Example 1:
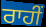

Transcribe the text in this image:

ਰਾਹੀਂ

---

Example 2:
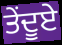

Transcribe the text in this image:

ਤੇਂਦੂਏ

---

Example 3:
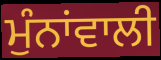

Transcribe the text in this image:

ਮੁੰਨਾਂਵਾਲੀ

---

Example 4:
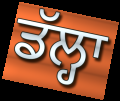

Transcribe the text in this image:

ਡੱਲ੍ਹਾ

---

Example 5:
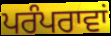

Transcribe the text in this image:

ਪਰੰਪਰਾਵਾਂ